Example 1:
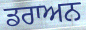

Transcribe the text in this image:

ਡਰਾਅਨ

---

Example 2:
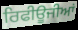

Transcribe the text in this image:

ਰਿਫੀਊਜੀਆਂ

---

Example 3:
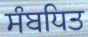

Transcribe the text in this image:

ਸੰਬਧਿਤ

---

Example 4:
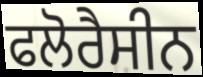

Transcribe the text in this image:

ਫਲੋਰੈਸੀਨ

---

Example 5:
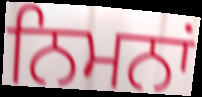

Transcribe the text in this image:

ਨਿਮਨਾਂ